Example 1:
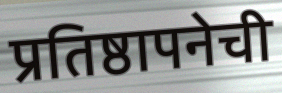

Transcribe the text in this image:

प्रतिष्ठापनेची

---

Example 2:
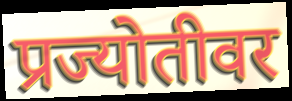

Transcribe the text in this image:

प्रज्योतीवर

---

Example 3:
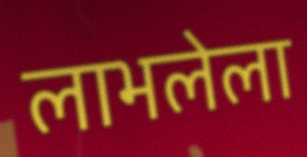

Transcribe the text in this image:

लाभलेला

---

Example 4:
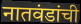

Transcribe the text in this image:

नातवंडांची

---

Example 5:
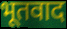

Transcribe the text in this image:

भूतवाद